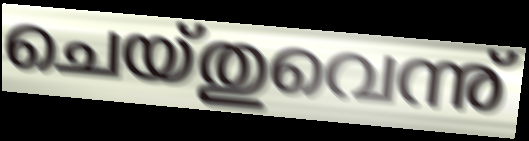
ചെയ്തുവെന്നു്